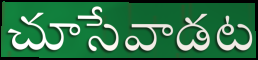
చూసేవాడట